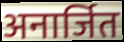
अनार्जित